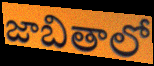
జాబితాలో